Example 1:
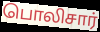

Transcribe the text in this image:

பொலிசார்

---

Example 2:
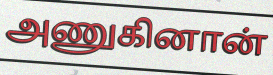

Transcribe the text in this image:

அணுகினான்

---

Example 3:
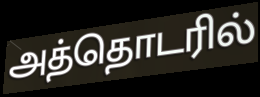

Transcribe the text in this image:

அத்தொடரில்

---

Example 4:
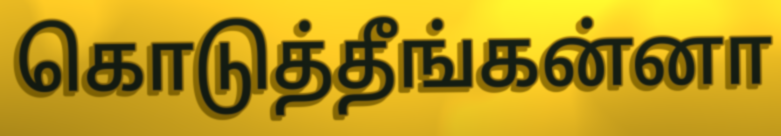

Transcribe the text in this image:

கொடுத்தீங்கன்னா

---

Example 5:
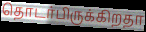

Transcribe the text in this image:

தொடர்பிருக்கிறதா